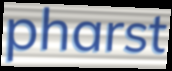
pharst